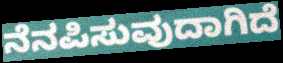
ನೆನಪಿಸುವುದಾಗಿದೆ